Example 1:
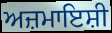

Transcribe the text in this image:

ਅਜ਼ਮਾਇਸ਼ੀ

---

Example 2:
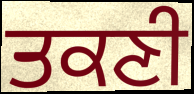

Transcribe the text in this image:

ਤਕਣੀ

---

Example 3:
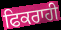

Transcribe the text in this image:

ਫਿਕਰਾਹੀ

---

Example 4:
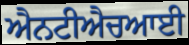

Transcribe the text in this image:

ਐਨਟੀਐਚਆਈ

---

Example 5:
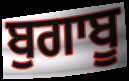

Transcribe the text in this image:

ਬੁਗਾਬੂ